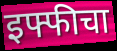
इफ्फीचा